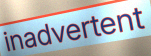
inadvertent